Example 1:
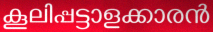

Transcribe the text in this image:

കൂലിപ്പട്ടാളക്കാരൻ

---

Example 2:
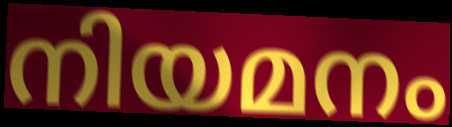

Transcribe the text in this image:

നിയമനം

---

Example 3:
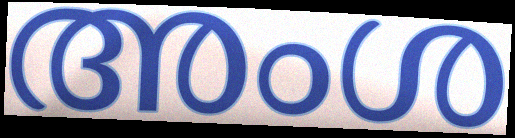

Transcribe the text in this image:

അംശ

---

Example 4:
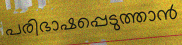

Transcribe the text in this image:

പരിഭാഷപ്പെടുത്താൻ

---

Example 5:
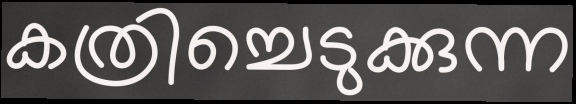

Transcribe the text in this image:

കത്രിച്ചെടുക്കുന്ന